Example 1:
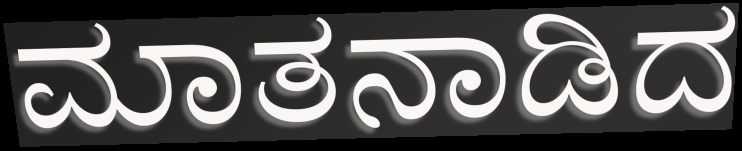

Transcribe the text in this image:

ಮಾತನಾಡಿದ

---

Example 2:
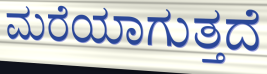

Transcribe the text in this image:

ಮರೆಯಾಗುತ್ತದೆ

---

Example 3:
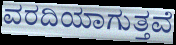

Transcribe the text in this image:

ವರದಿಯಾಗುತ್ತವೆ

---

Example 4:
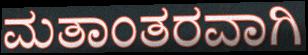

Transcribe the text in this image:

ಮತಾಂತರವಾಗಿ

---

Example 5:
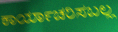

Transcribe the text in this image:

ಕಾರ್ಯಾಚರಿಸಬಲ್ಲ